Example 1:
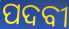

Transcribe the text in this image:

ପଦବୀ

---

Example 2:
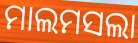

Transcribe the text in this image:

ମାଲମସଲା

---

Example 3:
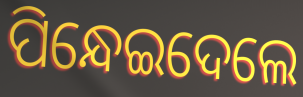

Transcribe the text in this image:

ପିନ୍ଧେଇଦେଲେ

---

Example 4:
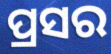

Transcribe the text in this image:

ପ୍ରସର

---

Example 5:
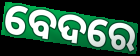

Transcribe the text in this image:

ବେଦରେ